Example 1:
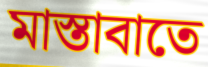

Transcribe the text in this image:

মাস্তাবাতে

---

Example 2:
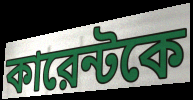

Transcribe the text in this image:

কারেন্টকে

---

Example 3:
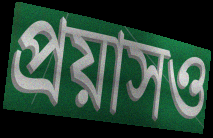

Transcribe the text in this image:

প্রয়াসও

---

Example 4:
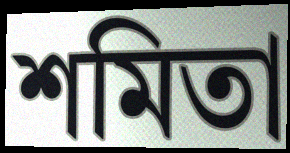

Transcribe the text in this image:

শমিতা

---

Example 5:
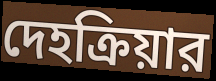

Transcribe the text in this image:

দেহক্রিয়ার